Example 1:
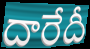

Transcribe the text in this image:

దారేదీ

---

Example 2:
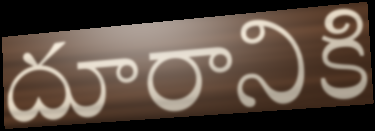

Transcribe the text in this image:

దూరానికి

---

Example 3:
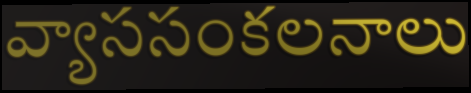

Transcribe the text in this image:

వ్యాససంకలనాలు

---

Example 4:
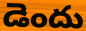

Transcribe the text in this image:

డెందు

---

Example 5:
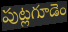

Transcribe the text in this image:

పుట్లగూడెం